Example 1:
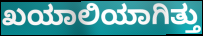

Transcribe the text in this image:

ಖಯಾಲಿಯಾಗಿತ್ತು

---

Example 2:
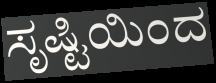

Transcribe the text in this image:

ಸೃಷ್ಟಿಯಿಂದ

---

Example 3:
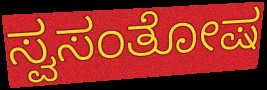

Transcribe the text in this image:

ಸ್ವಸಂತೋಷ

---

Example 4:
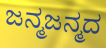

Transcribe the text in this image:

ಜನ್ಮಜನ್ಮದ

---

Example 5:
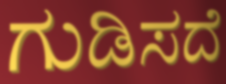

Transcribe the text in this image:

ಗುಡಿಸದೆ